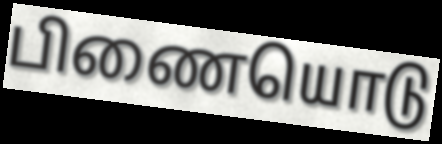
பிணையொடு